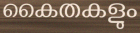
കൈതകളും